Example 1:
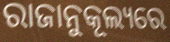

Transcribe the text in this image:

ରାଜାନୁକୂଲ୍ୟରେ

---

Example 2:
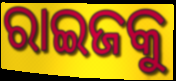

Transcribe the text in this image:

ରାଇଜକୁ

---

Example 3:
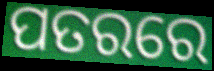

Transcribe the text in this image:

ପତରରେ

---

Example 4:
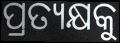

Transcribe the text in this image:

ପ୍ରତ୍ୟକ୍ଷକୁ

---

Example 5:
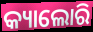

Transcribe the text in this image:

କ୍ୟାଲୋରି